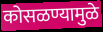
कोसळण्यामुळे